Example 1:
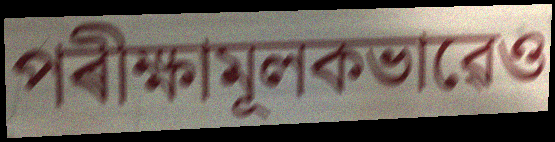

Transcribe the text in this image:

পৰীক্ষামূলকভাৱেও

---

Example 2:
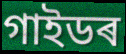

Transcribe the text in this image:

গাইডৰ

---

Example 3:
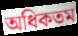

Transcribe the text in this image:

অধিকতম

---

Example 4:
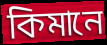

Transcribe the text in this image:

কিমানে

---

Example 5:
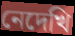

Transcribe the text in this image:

নেদেখি